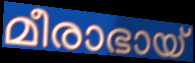
മീരാഭായ്